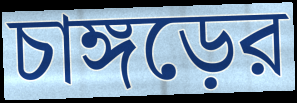
চাঙ্গড়ের